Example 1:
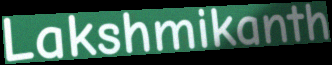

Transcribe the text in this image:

Lakshmikanth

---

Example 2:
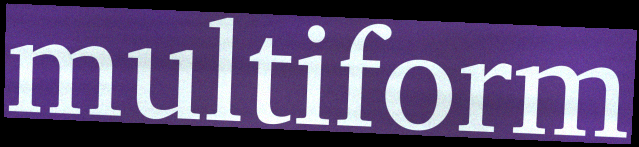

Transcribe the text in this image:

multiform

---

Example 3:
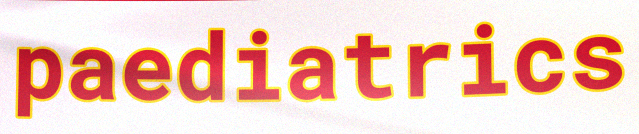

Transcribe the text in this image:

paediatrics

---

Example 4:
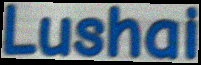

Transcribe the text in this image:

Lushai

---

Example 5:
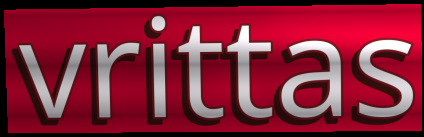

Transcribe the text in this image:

vrittas